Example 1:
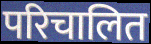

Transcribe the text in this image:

परिचालित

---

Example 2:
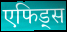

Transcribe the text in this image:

एफिड्स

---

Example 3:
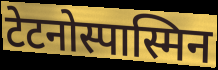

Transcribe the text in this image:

टेटनोस्पास्मिन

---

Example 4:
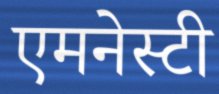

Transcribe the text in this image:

एमनेस्टी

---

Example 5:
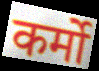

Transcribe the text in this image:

कर्मो